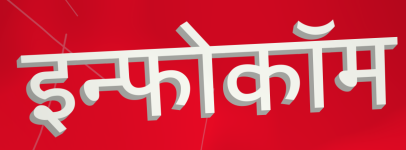
इन्फोकॉम